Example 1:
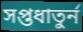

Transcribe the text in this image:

সপ্তধাতুর্ন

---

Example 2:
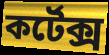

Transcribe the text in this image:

কর্টেক্স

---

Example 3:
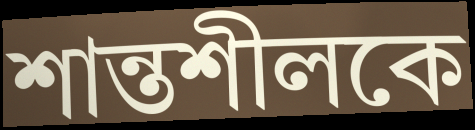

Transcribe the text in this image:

শান্তশীলকে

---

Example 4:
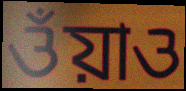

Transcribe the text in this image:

ওঁয়াও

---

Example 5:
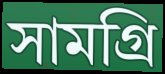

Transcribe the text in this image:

সামগ্রি